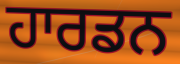
ਹਾਰਡਨ